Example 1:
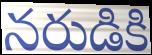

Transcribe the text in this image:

నరుడికి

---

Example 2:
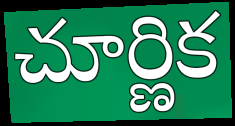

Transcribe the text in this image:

చూర్ణిక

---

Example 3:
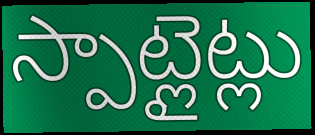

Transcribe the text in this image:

స్పాట్లైట్లు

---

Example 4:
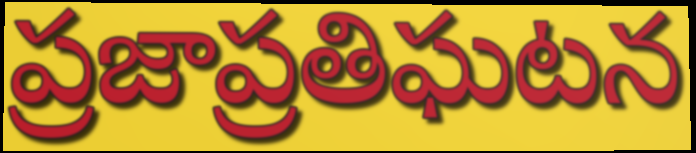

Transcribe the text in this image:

ప్రజాప్రతిఘటన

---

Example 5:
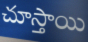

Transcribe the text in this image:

చూస్తాయి